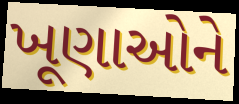
ખૂણાઓને